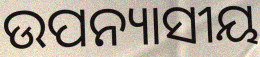
ଉପନ୍ୟାସୀୟ